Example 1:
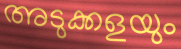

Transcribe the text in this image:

അടുക്കളയും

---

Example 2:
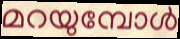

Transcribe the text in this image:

മറയുമ്പോൾ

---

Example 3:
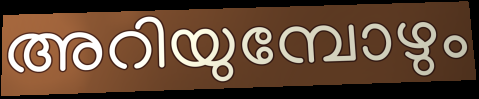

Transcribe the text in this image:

അറിയുമ്പോഴും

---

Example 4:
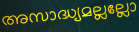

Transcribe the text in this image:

അസാദ്ധ്യമല്ലല്ലോ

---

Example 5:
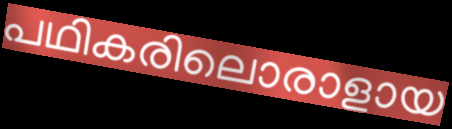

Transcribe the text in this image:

പഥികരിലൊരാളായ